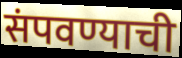
संपवण्याची